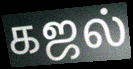
கஜல்